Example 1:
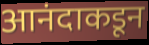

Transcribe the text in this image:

आनंदाकडून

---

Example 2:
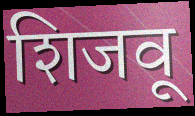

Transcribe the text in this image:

शिजवू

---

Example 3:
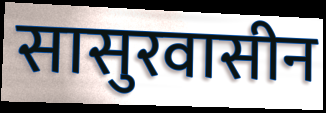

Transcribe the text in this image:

सासुरवासीन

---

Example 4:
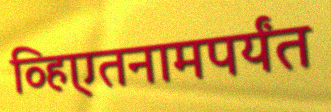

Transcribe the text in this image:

व्हिएतनामपर्यंत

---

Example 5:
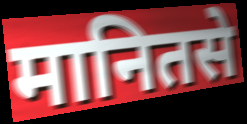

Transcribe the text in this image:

मानितसे